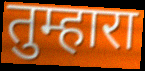
तुम्हारा